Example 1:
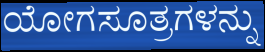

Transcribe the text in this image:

ಯೋಗಸೂತ್ರಗಳನ್ನು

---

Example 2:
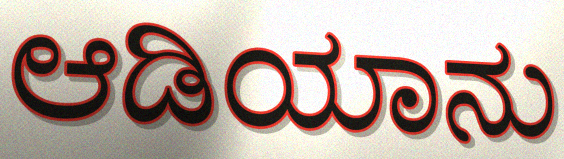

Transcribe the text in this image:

ಆಡಿಯಾನು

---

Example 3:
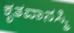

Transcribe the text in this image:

ಕೃತವಾನಸ್ಮಿ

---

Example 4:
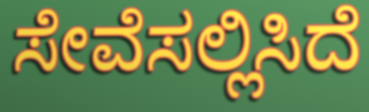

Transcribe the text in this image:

ಸೇವೆಸಲ್ಲಿಸಿದೆ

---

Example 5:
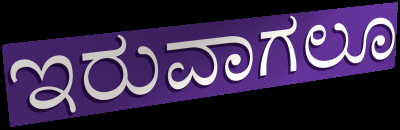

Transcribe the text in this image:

ಇರುವಾಗಲೂ